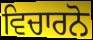
ਵਿਚਾਰਨੋ